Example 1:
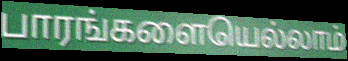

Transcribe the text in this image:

பாரங்களையெல்லாம்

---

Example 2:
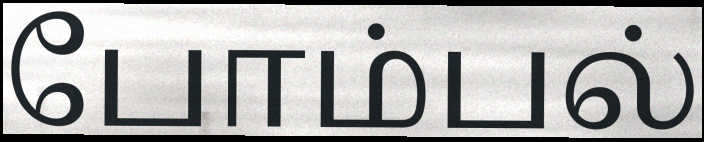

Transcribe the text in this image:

போம்பல்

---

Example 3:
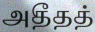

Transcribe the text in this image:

அதீதத்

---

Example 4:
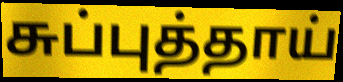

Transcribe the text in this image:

சுப்புத்தாய்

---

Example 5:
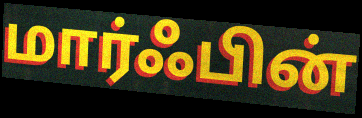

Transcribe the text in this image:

மார்ஃபின்